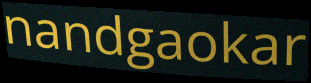
nandgaokar